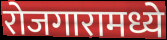
रोजगारामध्ये